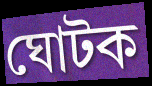
ঘোটক